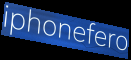
iphonefero